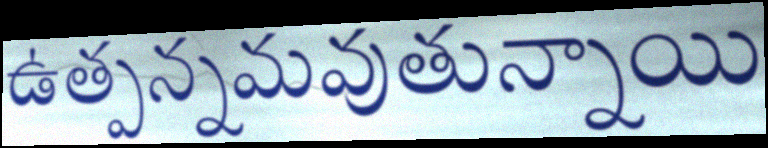
ఉత్పన్నమవుతున్నాయి